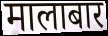
मालाबार